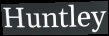
Huntley